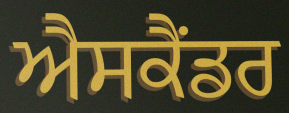
ਐਸਕੈਂਡਰ